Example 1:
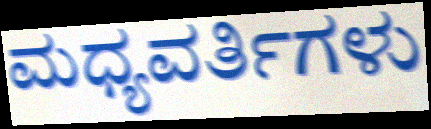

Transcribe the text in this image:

ಮಧ್ಯವರ್ತಿಗಳು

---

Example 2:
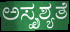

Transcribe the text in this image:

ಅಸ್ಪೃಶ್ಯತೆ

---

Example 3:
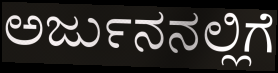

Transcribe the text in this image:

ಅರ್ಜುನನಲ್ಲಿಗೆ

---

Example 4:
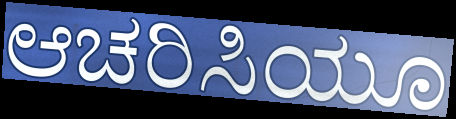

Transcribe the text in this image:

ಆಚರಿಸಿಯೂ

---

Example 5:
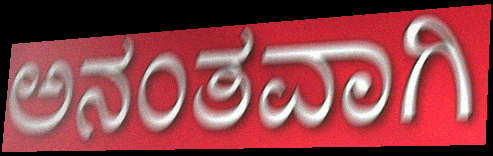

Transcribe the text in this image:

ಅನಂತವಾಗಿ